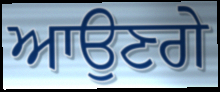
ਆਉਣਗੇ